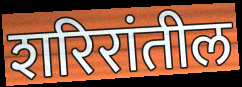
शरिरांतील